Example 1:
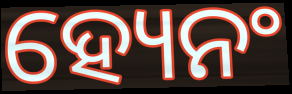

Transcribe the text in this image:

ହ୍ୟେନଂ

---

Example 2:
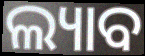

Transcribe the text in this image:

ଲ୍ୟାବ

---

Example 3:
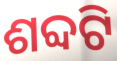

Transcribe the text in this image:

ଶବ୍ଦଟି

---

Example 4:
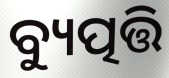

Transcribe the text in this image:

ବ୍ୟୁତ୍ପତ୍ତି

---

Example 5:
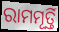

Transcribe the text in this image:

ରାମମୂର୍ତ୍ତି